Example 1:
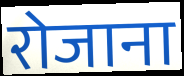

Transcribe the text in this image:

रोजाना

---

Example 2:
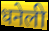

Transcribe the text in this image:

धनेली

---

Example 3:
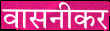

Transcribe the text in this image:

वासनीकर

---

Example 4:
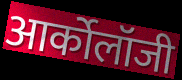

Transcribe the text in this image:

आर्कोलॉजी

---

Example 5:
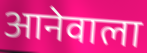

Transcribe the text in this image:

आनेवाला